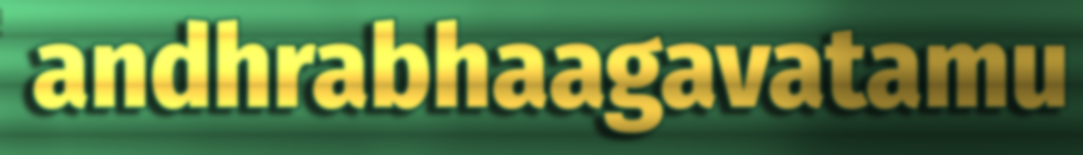
andhrabhaagavatamu